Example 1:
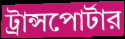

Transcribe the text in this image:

ট্রান্সপোর্টার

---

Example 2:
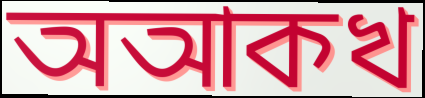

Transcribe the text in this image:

অআকখ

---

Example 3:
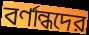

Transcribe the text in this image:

বর্ণান্ধদের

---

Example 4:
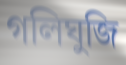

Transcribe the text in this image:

গলিঘুজি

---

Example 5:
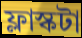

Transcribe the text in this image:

ফ্লাস্কটা